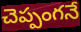
చెప్పంగనే